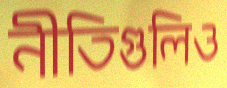
নীতিগুলিও